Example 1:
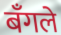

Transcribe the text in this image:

बँगले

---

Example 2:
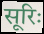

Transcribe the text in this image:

सूरिः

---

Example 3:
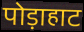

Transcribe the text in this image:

पोड़ाहाट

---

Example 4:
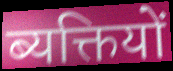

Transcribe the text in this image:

ब्यक्तियों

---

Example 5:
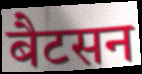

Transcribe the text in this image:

बैटसन